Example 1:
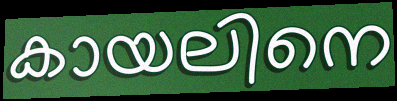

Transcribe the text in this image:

കായലിനെ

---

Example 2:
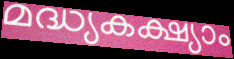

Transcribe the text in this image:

മദ്ധ്യകക്ഷ്യാം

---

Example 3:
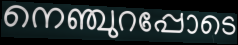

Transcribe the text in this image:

നെഞ്ചുറപ്പോടെ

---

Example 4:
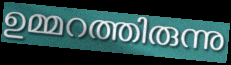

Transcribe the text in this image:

ഉമ്മറത്തിരുന്നു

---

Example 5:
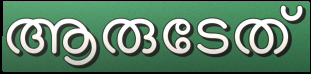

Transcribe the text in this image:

ആരുടേത്